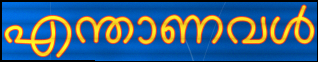
എന്താണവൾ